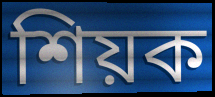
শিয়ক